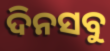
ଦିନସବୁ